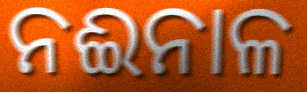
ନଈନାଳ